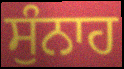
ਸੁੰਨਾਹ